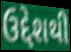
ઉદ્દેશથી